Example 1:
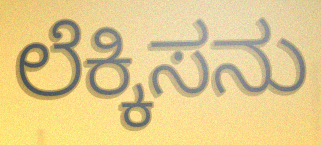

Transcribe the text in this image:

ಲೆಕ್ಕಿಸನು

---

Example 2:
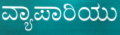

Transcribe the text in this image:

ವ್ಯಾಪಾರಿಯು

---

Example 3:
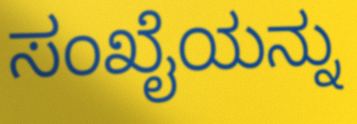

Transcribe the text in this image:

ಸಂಖೈಯನ್ನು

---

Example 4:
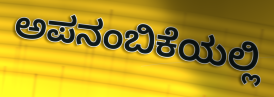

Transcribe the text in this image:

ಅಪನಂಬಿಕೆಯಲ್ಲಿ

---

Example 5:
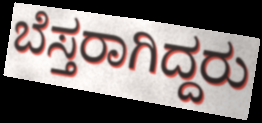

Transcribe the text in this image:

ಬೆಸ್ತರಾಗಿದ್ದರು